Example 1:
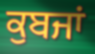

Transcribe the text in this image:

ਕੁਬਜਾਂ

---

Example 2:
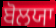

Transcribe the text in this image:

ਬੋਲਯਾ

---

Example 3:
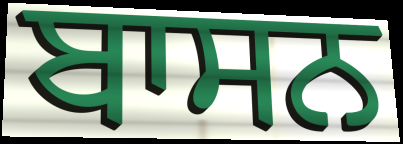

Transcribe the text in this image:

ਬਾਸਨ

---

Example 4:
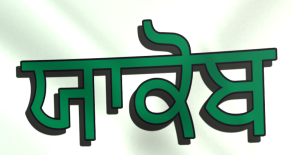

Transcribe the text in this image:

ਯਾਕੋਬ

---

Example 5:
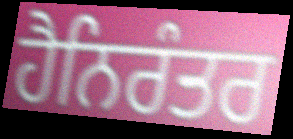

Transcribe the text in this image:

ਹੈਨਿਰੰਤਰ